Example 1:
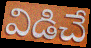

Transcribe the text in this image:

విడిచే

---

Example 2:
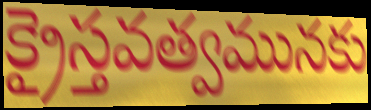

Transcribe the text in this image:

క్రైస్తవత్వమునకు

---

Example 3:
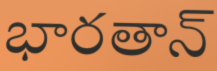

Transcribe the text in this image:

భారతాన్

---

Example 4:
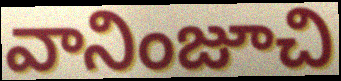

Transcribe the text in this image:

వానింజూచి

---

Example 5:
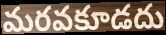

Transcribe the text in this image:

మరవకూడదు